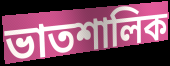
ভাতশালিক